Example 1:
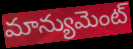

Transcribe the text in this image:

మాన్యుమెంట్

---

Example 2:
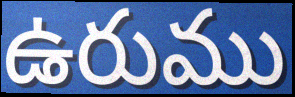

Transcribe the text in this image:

ఉరుము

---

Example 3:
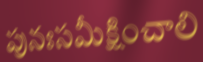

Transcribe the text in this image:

పునఃసమీక్షించాలి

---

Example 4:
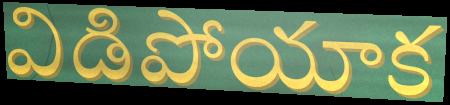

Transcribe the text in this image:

విడిపోయాక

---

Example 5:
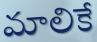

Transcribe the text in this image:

మాలికే